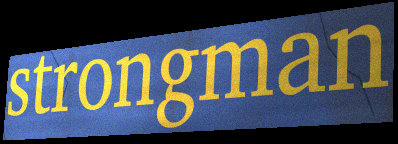
strongman